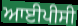
ਆਈਪੀਸੀ